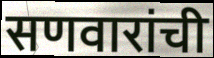
सणवारांची